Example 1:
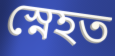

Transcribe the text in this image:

স্নেহত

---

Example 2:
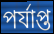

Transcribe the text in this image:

পৰ্যাপ্ত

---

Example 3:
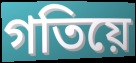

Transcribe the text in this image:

গতিয়ে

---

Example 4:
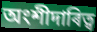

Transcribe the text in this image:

অংশীদাৰিত্ব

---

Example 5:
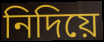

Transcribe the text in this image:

নিদিয়ে